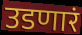
उडणारं